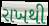
રાખથી